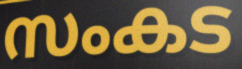
സംകട